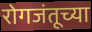
रोगजंतूच्या